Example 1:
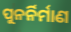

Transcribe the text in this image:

ପୁନର୍ନିର୍ମାଣ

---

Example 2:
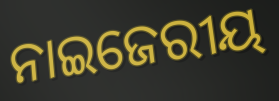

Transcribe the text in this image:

ନାଇଜେରୀୟ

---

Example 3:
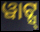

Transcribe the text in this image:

ୱାଟ୍ସ୍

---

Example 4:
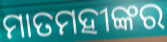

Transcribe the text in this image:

ମାତମହୀଙ୍କର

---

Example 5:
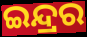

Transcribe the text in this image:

ଇନ୍ଦ୍ରର